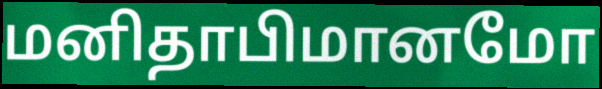
மனிதாபிமானமோ